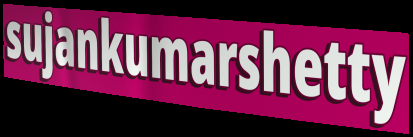
sujankumarshetty